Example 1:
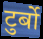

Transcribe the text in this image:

टुर्बो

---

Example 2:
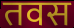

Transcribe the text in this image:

तवस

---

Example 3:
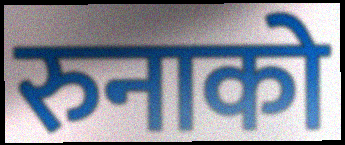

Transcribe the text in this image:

रुनाको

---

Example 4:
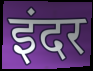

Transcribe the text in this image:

इंदर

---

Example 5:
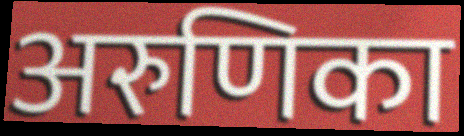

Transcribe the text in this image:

अरुणिका